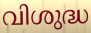
വിശുദ്ധ